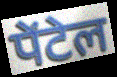
पेंटेल